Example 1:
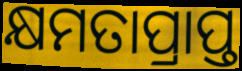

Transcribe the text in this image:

କ୍ଷମତାପ୍ରାପ୍ତ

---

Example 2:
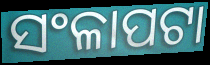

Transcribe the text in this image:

ସଂଳାପଟା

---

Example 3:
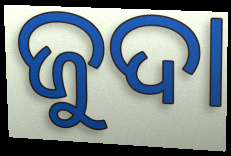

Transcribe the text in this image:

ଜୁଦା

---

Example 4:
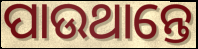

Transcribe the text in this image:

ପାଉଥାନ୍ତେ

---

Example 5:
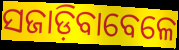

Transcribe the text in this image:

ସଜାଡ଼ିବାବେଳେ